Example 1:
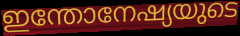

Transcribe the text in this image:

ഇന്തോനേഷ്യയുടെ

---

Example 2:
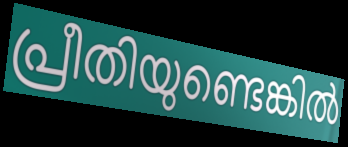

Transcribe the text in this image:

പ്രീതിയുണ്ടെങ്കിൽ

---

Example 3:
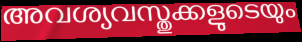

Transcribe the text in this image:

അവശ്യവസ്തുക്കളുടെയും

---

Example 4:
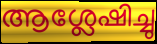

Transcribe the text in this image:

ആശ്ലേഷിച്ചു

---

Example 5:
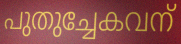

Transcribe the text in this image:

പുതുച്ചേകവന്